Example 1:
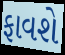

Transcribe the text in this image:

ફાવશે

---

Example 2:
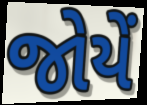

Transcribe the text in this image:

જોયેં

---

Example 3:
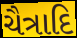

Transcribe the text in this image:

ચૈત્રાદિ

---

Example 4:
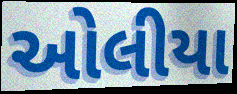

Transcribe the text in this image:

ઓલીયા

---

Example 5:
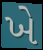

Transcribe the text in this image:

ખે